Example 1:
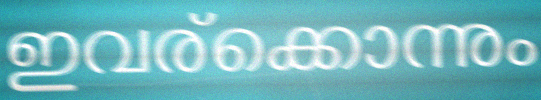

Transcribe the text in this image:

ഇവര്ക്കൊന്നും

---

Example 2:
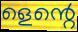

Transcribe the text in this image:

ളെന്റെ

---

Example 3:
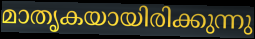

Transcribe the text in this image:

മാതൃകയായിരിക്കുന്നു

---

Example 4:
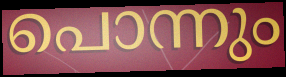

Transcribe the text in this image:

പൊന്നും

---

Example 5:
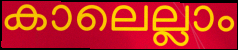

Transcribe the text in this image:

കാലെല്ലാം